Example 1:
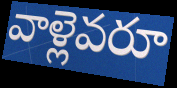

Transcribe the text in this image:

వాళ్లెవరూ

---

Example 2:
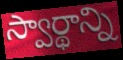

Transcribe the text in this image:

స్వార్థాన్ని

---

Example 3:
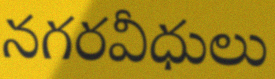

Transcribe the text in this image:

నగరవీధులు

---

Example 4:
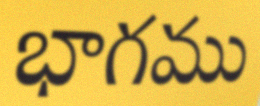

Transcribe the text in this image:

భాగము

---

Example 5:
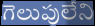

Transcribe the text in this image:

గెలుపులేని